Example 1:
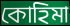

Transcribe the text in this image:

কোহিমা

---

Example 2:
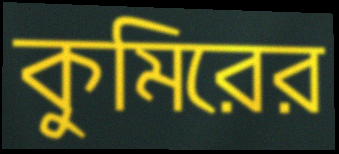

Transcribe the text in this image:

কুমিরের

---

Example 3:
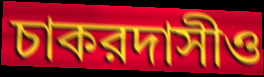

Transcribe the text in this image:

চাকরদাসীও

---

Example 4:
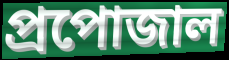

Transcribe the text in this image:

প্রপোজাল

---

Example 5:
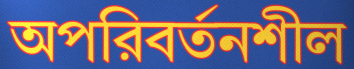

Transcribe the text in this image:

অপরিবর্তনশীল